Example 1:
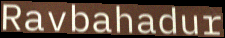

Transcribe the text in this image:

Ravbahadur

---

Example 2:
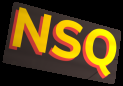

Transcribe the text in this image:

NSQ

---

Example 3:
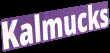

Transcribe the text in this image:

Kalmucks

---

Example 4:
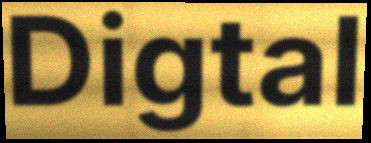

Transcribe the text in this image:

Digtal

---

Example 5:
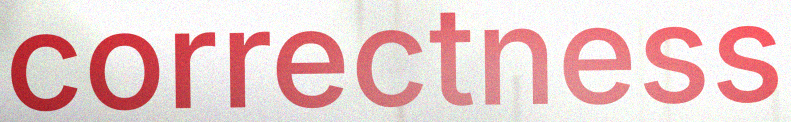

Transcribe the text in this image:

correctness